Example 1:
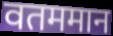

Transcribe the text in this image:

वतममान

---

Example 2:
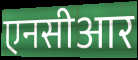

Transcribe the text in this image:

एनसीआर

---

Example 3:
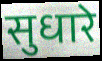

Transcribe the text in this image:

सुधारे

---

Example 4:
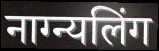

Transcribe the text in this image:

नाग्न्यलिंग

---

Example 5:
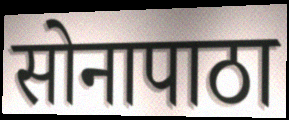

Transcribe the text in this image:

सोनापाठा